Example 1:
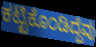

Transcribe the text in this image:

ಕಟ್ಟಿಕೊಂಡಿದ್ದೆವು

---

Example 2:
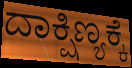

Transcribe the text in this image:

ದಾಕ್ಷಿಣ್ಯಕ್ಕೆ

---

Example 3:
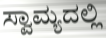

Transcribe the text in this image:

ಸ್ವಾಮ್ಯದಲ್ಲಿ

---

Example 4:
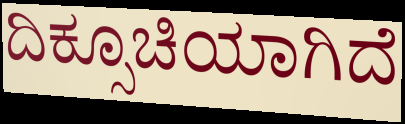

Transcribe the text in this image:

ದಿಕ್ಸೂಚಿಯಾಗಿದೆ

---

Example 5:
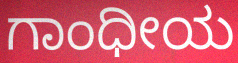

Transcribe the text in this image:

ಗಾಂಧೀಯ